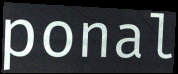
ponal